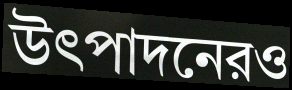
উৎপাদনেরও